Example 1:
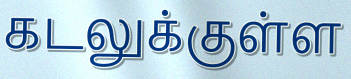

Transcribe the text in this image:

கடலுக்குள்ள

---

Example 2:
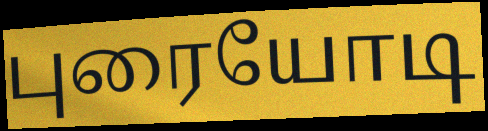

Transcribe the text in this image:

புரையோடி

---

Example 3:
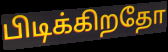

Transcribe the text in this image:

பிடிக்கிறதோ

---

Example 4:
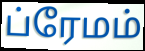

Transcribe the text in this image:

ப்ரேமம்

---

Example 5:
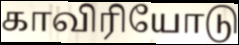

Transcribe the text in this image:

காவிரியோடு